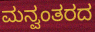
ಮನ್ವಂತರದ